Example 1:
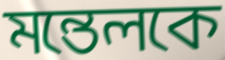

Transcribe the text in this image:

মন্তেলকে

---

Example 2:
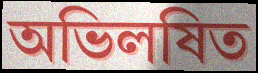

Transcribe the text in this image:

অভিলষিত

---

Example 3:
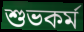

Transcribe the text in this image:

শুভকর্ম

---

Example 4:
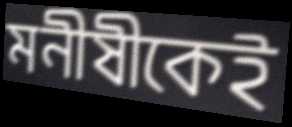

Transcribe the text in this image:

মনীষীকেই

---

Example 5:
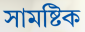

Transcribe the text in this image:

সামষ্টিক